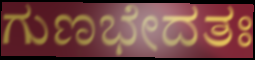
ಗುಣಭೇದತಃ